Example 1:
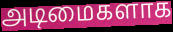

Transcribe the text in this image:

அடிமைகளாக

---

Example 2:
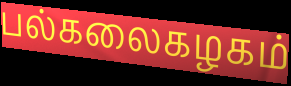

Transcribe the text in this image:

பல்கலைகழகம்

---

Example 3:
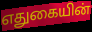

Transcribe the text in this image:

எதுகையின்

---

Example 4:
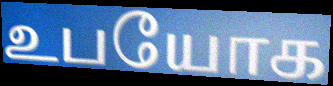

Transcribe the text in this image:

உபயோக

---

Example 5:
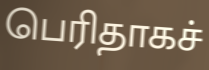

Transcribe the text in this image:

பெரிதாகச்